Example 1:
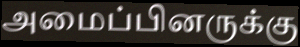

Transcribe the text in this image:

அமைப்பினருக்கு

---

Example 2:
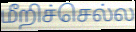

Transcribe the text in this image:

மீறிச்செல்ல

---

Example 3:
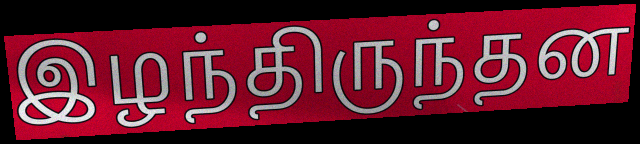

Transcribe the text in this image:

இழந்திருந்தன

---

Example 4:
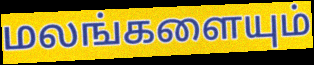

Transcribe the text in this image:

மலங்களையும்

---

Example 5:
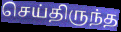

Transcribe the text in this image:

செய்திருந்த